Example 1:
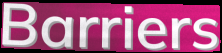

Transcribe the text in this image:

Barriers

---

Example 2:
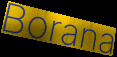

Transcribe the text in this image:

Borana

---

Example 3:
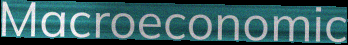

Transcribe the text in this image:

Macroeconomic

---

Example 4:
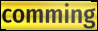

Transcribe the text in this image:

comming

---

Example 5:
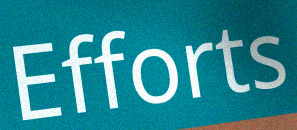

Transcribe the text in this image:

Efforts